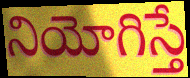
నియోగిస్తే